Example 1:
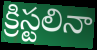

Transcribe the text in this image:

క్రిస్టలినా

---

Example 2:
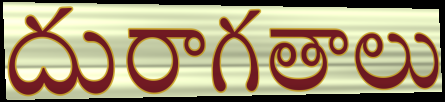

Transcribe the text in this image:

దురాగతాలు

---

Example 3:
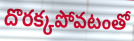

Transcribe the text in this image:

దొరక్కపోవటంతో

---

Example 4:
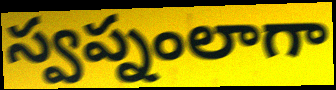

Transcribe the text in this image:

స్వప్నంలాగా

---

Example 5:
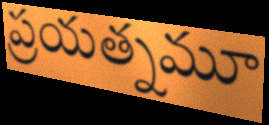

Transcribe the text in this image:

ప్రయత్నమూ